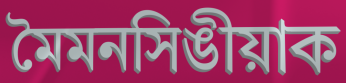
মৈমনসিঙীয়াক